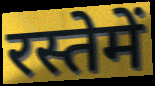
रस्तेमें